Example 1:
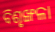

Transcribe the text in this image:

ବିଶୃଙ୍ଖଳା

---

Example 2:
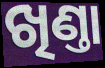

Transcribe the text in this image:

ଖିଣ୍ତା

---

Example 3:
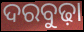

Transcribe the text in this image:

ଦରବୁଢ଼ା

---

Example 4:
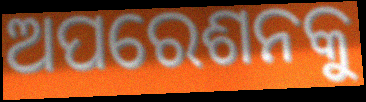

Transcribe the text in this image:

ଅପରେଶନକୁ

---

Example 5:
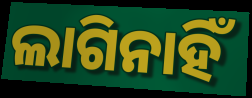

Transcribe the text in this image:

ଲାଗିନାହିଁ